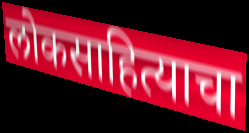
लोकसाहित्याचा